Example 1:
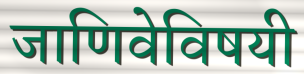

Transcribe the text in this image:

जाणिवेविषयी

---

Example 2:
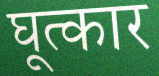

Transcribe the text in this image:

घूत्कार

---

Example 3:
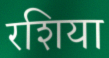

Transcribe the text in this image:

रशिया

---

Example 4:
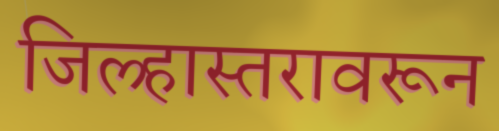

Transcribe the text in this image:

जिल्हास्तरावरून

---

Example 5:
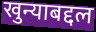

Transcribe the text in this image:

खुन्याबद्दल